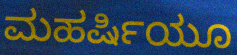
ಮಹರ್ಷಿಯೂ